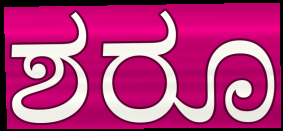
ಶರೂ